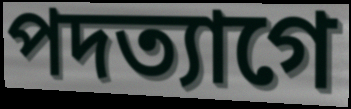
পদত্যাগে